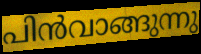
പിൻവാങ്ങുന്നു